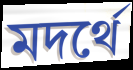
মদর্থে